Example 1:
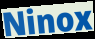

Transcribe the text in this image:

Ninox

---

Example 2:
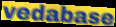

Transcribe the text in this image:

vedabase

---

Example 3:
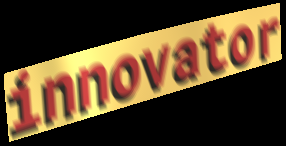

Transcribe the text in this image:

innovator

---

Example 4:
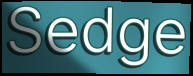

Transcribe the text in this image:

Sedge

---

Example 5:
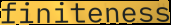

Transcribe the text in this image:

finiteness